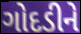
ગોદડીને